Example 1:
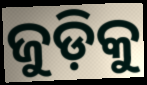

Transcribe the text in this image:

ଜୁଡ଼ିକୁ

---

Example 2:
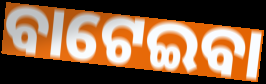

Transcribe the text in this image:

ବାଟେଇବା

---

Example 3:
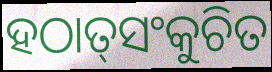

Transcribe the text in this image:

ହଠାତ୍‌ସଂକୁଚିତ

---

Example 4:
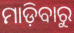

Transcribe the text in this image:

ମାଡ଼ିବାରୁ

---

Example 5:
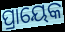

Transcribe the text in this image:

ପ୍ରାୟେକ